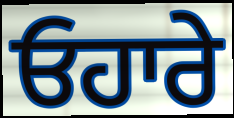
ਓਹਾਰੇ